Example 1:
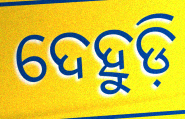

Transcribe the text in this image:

ଦେହୁଡ଼ି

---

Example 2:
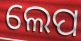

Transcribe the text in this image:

ଲେପ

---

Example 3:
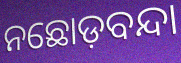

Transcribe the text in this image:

ନଛୋଡ଼ବନ୍ଦା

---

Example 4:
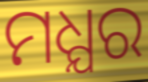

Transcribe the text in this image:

ମଧ୍ଯର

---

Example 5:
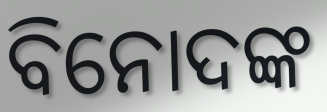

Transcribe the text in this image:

ବିନୋଦଙ୍କ